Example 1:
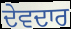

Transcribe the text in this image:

ਦੇਵਦਾਰ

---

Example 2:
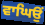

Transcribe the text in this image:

ਵਾਘਿਉਂ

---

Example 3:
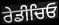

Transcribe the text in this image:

ਰੇਡੀਚਿਓ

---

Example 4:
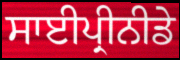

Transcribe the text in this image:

ਸਾਈਪ੍ਰੀਨੀਡੇ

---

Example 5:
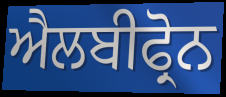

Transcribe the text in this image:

ਐਲਬੀਫ੍ਰੋਨ